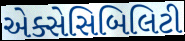
એક્સેસિબિલિટી